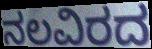
ನಲವಿರದ